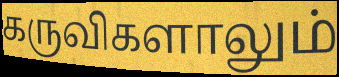
கருவிகளாலும்